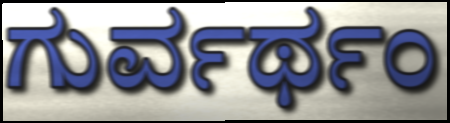
ಗುರ್ವರ್ಥಂ